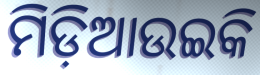
ମିଡ଼ିଆଉଇକି